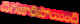
దిగజారిపోయింది